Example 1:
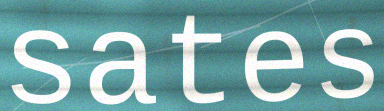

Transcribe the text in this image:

sates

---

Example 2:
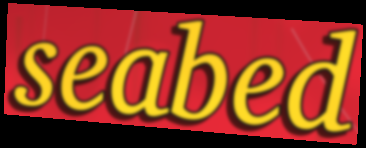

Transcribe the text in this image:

seabed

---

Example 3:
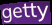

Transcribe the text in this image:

getty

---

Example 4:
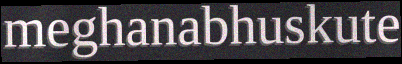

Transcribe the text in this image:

meghanabhuskute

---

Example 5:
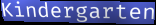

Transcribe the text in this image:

Kindergarten